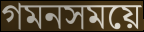
গমনসময়ে